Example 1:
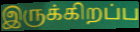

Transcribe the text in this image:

இருக்கிறப்ப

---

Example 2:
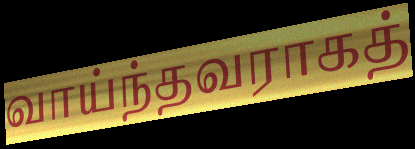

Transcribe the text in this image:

வாய்ந்தவராகத்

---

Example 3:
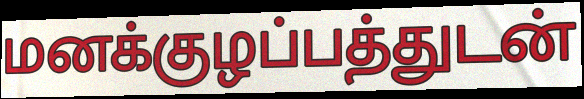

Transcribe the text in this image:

மனக்குழப்பத்துடன்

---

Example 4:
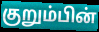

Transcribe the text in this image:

குறும்பின்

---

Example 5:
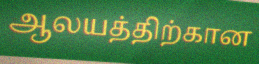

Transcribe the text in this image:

ஆலயத்திற்கான